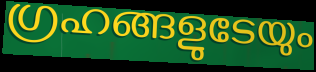
ഗ്രഹങ്ങളുടേയും